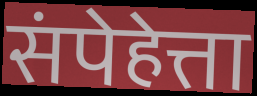
संपेहेत्ता